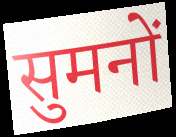
सुमनों